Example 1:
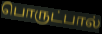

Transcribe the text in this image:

பொருட்பால்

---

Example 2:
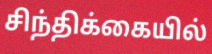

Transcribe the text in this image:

சிந்திக்கையில்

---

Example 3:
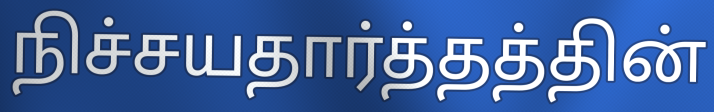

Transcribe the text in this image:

நிச்சயதார்த்தத்தின்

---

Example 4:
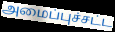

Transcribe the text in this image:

அமைப்புச்சட்ட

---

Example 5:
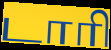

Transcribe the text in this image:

டாரி